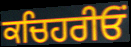
ਕਚਿਹਰੀਓਂ